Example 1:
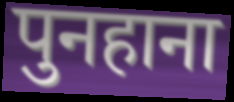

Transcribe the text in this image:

पुनहाना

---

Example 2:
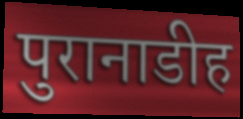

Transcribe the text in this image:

पुरानाडीह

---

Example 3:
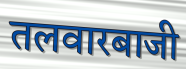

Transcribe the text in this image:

तलवारबाजी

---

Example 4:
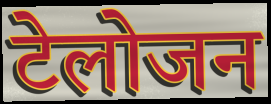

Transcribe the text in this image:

टेलोजन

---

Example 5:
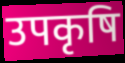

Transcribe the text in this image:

उपकृषि